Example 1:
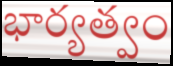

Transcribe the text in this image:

భార్యత్వం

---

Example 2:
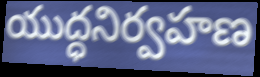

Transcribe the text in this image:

యుద్ధనిర్వహణ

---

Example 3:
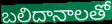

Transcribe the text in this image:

బలిదానాలతో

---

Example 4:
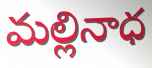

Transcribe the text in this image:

మల్లినాధ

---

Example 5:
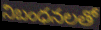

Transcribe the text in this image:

నిబంధనలతో